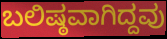
ಬಲಿಷ್ಠವಾಗಿದ್ದವು